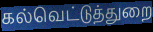
கல்வெட்டுத்துறை